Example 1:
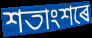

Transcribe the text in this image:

শতাংশৰে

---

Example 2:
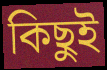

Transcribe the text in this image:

কিছুই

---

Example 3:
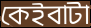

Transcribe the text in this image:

কেইবাটা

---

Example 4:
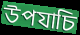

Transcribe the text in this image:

উপযাচি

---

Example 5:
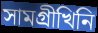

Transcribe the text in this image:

সামগ্ৰীখিনি